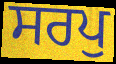
ਸਰਪੁ